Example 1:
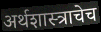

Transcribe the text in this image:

अर्थशास्त्राचेच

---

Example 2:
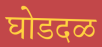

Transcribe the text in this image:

घोडदळ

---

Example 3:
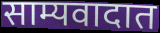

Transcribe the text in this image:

साम्यवादात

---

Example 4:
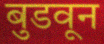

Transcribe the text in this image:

बुडवून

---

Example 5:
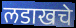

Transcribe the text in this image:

लडाखचे